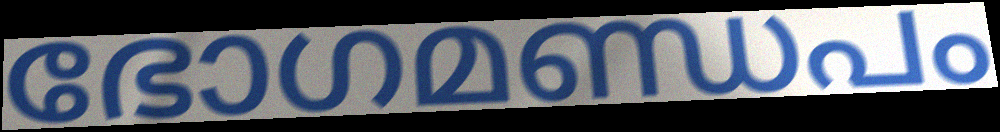
ഭോഗമണ്ഡപം